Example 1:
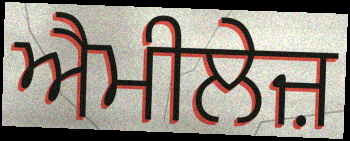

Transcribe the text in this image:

ਐਮੀਲੇਜ਼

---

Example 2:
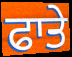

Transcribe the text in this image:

ਫਾਤੇ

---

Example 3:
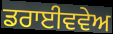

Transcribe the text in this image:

ਡਰਾਈਵਵੇਅ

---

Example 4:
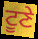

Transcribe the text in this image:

ਟੂਣੇ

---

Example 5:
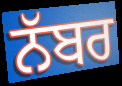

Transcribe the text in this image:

ਨੱਬਰ